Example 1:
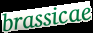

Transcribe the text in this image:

brassicae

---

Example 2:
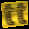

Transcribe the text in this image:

tt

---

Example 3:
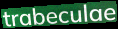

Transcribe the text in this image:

trabeculae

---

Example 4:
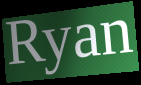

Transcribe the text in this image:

Ryan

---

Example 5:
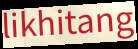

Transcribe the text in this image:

likhitang